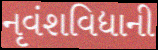
નૃવંશવિદ્યાની